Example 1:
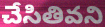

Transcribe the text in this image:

చేసితివని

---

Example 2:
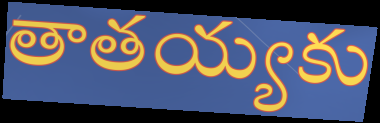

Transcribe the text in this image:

తాతయ్యకు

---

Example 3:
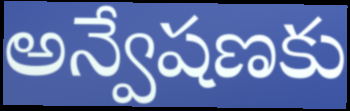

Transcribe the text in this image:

అన్వేషణకు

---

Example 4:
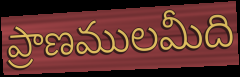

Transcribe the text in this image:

ప్రాణములమీది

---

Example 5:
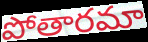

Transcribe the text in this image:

పోతారమా